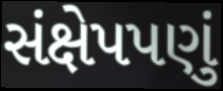
સંક્ષેપપણું